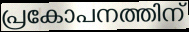
പ്രകോപനത്തിന്